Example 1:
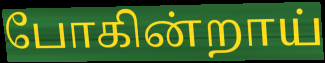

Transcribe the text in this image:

போகின்றாய்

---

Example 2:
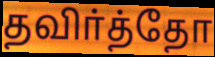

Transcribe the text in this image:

தவிர்த்தோ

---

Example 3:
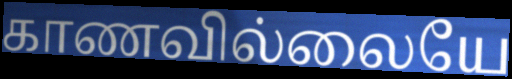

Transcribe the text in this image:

காணவில்லையே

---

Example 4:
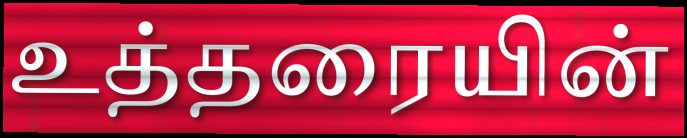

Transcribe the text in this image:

உத்தரையின்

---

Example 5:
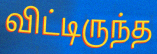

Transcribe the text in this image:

விட்டிருந்த